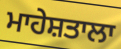
ਮਾਹੇਸ਼ਤਾਲਾ